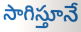
సాగిస్తూనే